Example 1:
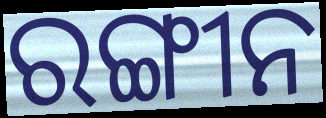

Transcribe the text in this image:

ରଙ୍ଗୀନ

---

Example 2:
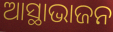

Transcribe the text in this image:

ଆସ୍ଥାଭାଜନ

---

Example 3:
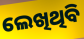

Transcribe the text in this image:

ଲେଖିଥିବି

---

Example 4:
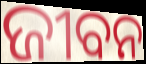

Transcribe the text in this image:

ଜୀବନ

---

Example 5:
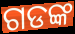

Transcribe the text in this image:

ଗଡଙ୍କ